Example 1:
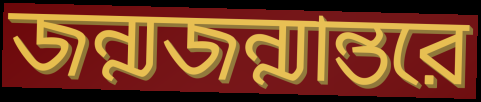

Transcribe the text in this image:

জন্মজন্মান্তরে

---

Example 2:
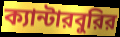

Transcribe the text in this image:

ক্যান্টারবুরির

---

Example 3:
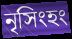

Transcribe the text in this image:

নৃসিংহং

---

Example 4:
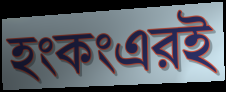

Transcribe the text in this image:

হংকংএরই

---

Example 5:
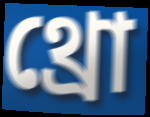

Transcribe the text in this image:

থ্রো